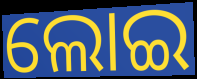
ଲୋଇ